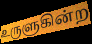
உருளுகின்ற